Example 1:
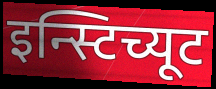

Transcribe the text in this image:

इन्स्टिच्यूट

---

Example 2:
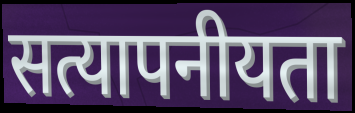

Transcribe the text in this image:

सत्यापनीयता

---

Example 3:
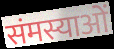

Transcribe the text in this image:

संमस्याओं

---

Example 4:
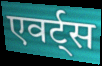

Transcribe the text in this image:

एवर्ट्स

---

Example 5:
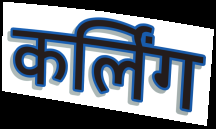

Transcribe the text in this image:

कर्लिंग